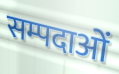
सम्पदाओं